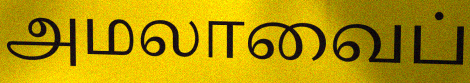
அமலாவைப்